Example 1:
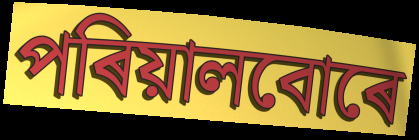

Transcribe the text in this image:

পৰিয়ালবোৰে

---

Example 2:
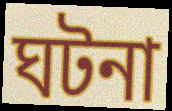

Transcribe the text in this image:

ঘটনা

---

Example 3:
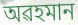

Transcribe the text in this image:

অৱহমান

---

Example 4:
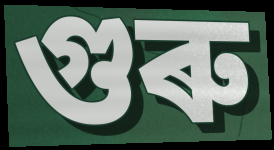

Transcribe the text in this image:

গুৰু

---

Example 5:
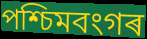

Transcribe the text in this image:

পশ্চিমবংগৰ